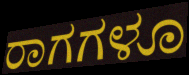
ರಾಗಗಳೂ